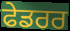
ਫੇਡਰਰ